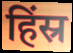
हिंस्र